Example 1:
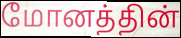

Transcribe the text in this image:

மோனத்தின்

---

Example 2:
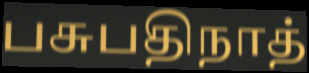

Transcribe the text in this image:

பசுபதிநாத்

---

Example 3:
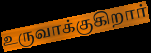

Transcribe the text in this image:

உருவாக்குகிறார்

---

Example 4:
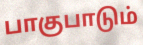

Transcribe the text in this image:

பாகுபாடும்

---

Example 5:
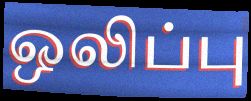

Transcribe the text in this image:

ஒலிப்பு